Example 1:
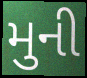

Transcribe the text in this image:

મુની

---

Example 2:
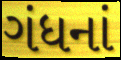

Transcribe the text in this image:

ગંધનાં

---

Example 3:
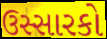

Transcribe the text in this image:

ઉસ્સારકો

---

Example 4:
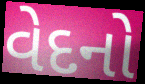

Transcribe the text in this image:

વેદનો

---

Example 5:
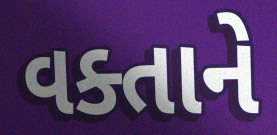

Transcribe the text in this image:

વક્તાને